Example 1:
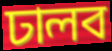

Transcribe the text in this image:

ঢালব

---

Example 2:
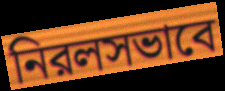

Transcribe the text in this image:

নিরলসভাবে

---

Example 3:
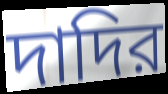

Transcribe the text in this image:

দাদির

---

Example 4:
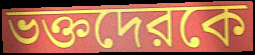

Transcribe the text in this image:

ভক্তদেরকে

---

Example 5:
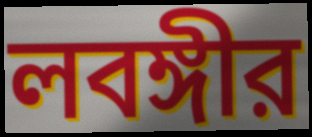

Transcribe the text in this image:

লবঙ্গীর